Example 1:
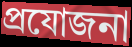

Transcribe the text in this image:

প্ৰযোজনা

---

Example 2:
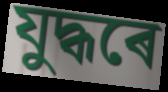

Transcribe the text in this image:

যুদ্ধৰে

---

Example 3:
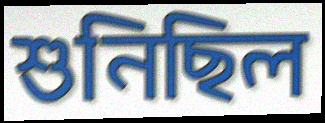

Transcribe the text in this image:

শুনিছিল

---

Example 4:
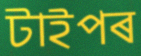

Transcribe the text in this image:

টাইপৰ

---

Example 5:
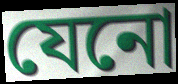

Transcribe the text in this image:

যেনো